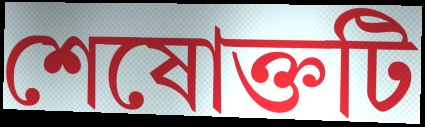
শেষোক্তটি